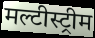
मल्टीस्ट्रीम